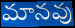
మానవు